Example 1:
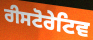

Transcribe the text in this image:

ਰੀਸਟੋਰੇਟਿਵ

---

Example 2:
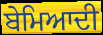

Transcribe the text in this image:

ਬੇਮਿਆਦੀ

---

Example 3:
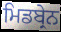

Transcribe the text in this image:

ਮਿਡਬ੍ਰੇਨ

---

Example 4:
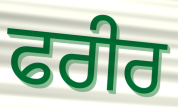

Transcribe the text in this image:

ਫਰੀਰ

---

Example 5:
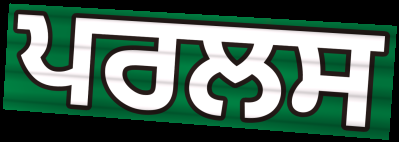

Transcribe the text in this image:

ਪਰਲਸ